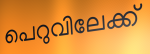
പെറുവിലേക്ക്